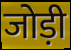
जोड़ी